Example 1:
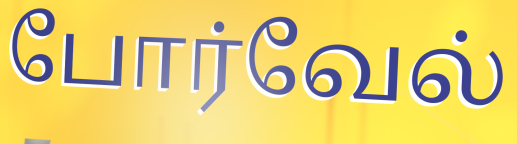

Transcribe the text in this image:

போர்வேல்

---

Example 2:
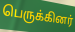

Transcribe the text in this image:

பெருக்கினர்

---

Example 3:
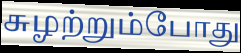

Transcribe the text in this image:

சுழற்றும்போது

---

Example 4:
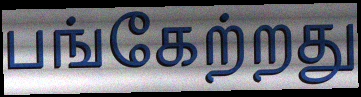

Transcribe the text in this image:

பங்கேற்றது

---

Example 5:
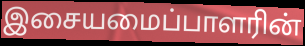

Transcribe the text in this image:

இசையமைப்பாளரின்